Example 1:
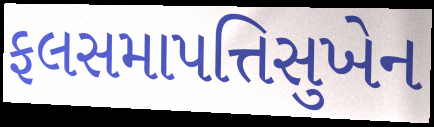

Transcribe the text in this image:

ફલસમાપત્તિસુખેન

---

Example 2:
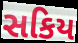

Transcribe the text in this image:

સકિય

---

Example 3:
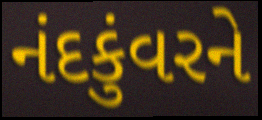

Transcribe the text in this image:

નંદકુંવરને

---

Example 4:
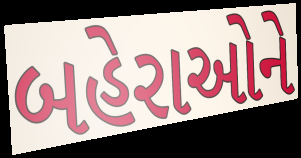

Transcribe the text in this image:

બહેરાઓને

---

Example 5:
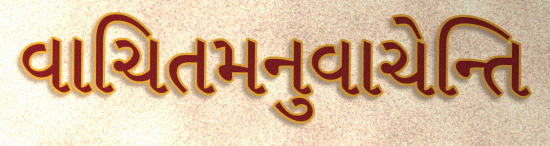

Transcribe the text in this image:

વાચિતમનુવાચેન્તિ